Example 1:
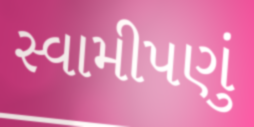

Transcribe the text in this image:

સ્વામીપણું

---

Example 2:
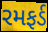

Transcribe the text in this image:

રમફર્ડ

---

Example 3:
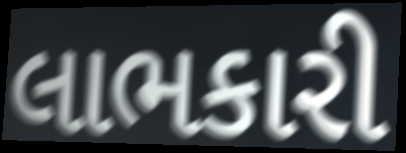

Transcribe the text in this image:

લાભકારી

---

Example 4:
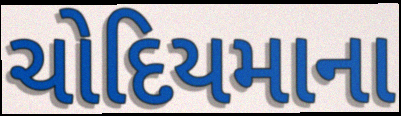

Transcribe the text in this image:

ચોદિયમાના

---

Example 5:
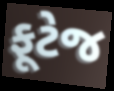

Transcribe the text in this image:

ફૂટેજ